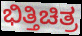
ಭಿತ್ತಿಚಿತ್ರ